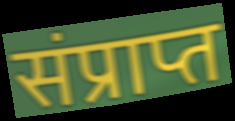
संप्राप्त